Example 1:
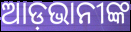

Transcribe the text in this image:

ଆଡ଼ଭାନୀଙ୍କ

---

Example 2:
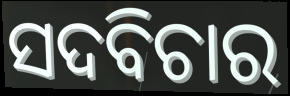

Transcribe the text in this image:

ସଦବିଚାର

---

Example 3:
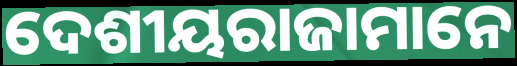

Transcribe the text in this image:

ଦେଶୀୟରାଜାମାନେ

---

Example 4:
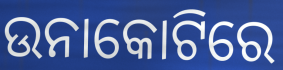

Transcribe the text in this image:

ଉନାକୋଟିରେ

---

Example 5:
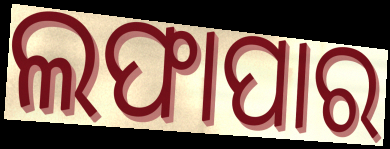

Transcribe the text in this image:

ଲଫାପାର